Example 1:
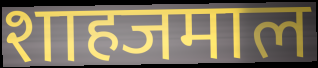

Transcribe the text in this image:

शाहजमाल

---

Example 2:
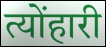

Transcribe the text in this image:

त्योंहारी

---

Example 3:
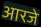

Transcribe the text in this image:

आरजे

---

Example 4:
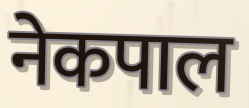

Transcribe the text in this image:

नेकपाल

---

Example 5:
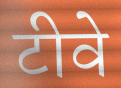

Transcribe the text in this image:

टीवे